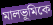
মালভূমিকে